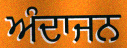
ਅੰਦਾਜਨ